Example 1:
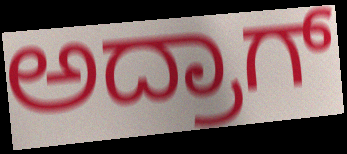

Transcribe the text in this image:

ಅದ್ರಾಗ್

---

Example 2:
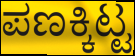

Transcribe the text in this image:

ಪಣಕ್ಕಿಟ್ಟ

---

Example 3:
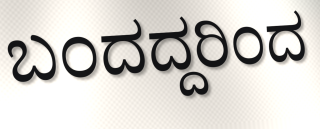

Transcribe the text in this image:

ಬಂದದ್ದರಿಂದ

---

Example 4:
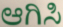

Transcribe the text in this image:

ಆಗಿಸಿ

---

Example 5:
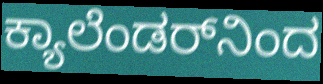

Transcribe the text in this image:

ಕ್ಯಾಲೆಂಡರ್‌ನಿಂದ